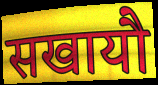
सखायौ